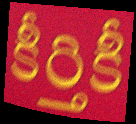
కీర్తికీ